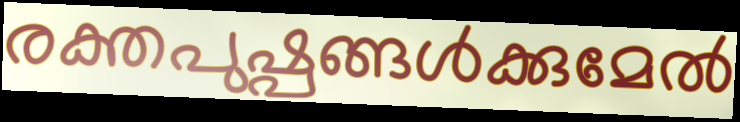
രക്തപുഷ്പങ്ങൾക്കുമേൽ